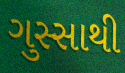
ગુસ્સાથી